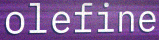
olefine